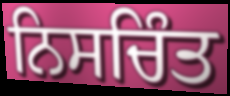
ਨਿਸਚਿੰਤ